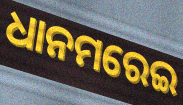
ଧାନମରେଇ